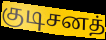
குடிசனத்